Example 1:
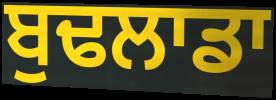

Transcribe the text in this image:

ਬੁਢਲਾਡਾ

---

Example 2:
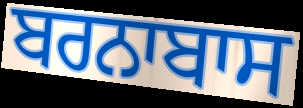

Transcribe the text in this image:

ਬਰਨਾਬਾਸ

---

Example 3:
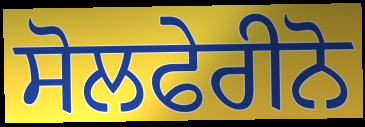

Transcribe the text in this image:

ਸੋਲਫੇਰੀਨੋ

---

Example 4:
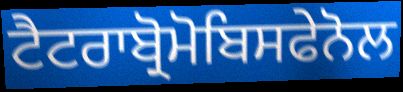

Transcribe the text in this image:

ਟੈਟਰਾਬ੍ਰੋਮੋਬਿਸਫੇਨੋਲ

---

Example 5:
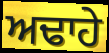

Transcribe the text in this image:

ਅਢਾਹੇ